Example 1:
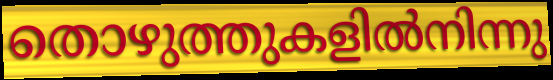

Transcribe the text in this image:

തൊഴുത്തുകളിൽനിന്നു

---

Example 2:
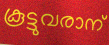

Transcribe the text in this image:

കൂട്ടുവരാന്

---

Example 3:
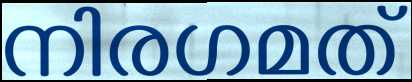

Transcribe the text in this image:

നിരഗമത്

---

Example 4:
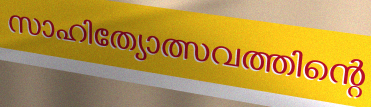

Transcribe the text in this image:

സാഹിത്യോത്സവത്തിന്റെ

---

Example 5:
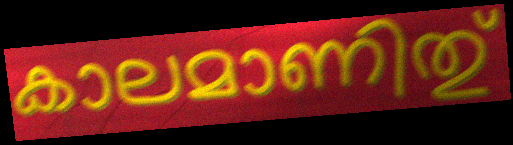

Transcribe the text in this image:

കാലമാണിതു്